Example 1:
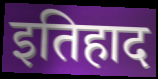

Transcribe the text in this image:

इतिहाद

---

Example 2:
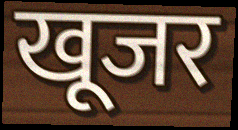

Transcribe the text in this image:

खूजर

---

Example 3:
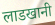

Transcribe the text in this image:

लाडखानी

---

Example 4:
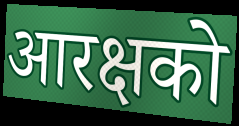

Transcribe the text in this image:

आरक्षको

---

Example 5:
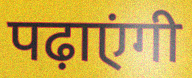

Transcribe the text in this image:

पढ़ाएंगी